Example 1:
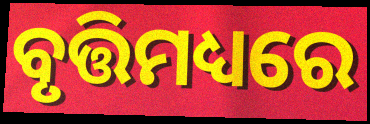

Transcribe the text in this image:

ବୃତ୍ତିମଧ୍ୟରେ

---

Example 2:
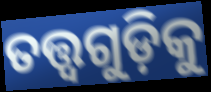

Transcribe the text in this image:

ତତ୍ତ୍ୱଗୁଡ଼ିକୁ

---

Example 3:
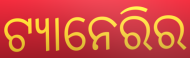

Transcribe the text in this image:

ଟ୍ୟାନେରିର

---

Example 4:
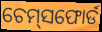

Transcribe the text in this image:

ଚେମ୍‌ସଫୋର୍ଡ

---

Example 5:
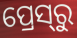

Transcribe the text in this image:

ପ୍ରେସ୍‌ରୁ